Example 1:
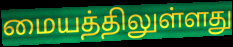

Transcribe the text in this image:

மையத்திலுள்ளது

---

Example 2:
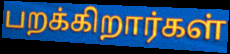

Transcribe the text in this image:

பறக்கிறார்கள்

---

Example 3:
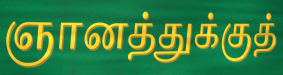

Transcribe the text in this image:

ஞானத்துக்குத்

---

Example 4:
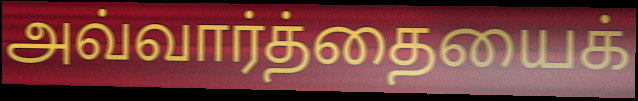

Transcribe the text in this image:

அவ்வார்த்தையைக்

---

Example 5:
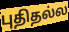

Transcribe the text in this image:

புதிதல்ல